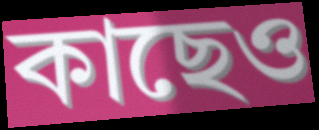
কাছেও